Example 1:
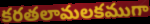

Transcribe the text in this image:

కరతలామలకముగా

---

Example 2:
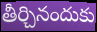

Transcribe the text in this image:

తీర్చినందుకు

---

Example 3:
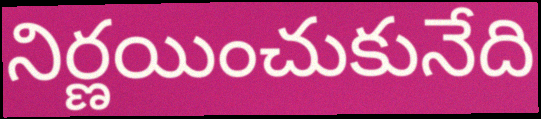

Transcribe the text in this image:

నిర్ణయించుకునేది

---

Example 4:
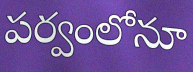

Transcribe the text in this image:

పర్వంలోనూ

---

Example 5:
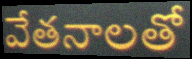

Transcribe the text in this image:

వేతనాలతో